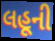
લહૂની